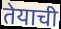
तेयाची